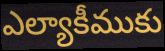
ఎల్యాకీముకు